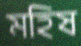
মহিষ